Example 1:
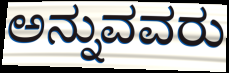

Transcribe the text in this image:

ಅನ್ನುವವರು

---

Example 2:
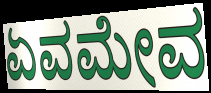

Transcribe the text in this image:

ಏವಮೇವ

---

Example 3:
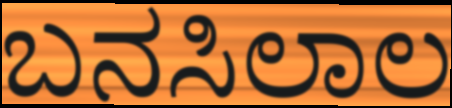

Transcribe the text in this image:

ಬನಸಿಲಾಲ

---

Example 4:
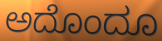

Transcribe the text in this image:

ಅದೊಂದೂ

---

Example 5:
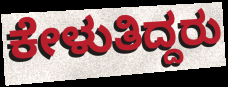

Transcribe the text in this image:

ಕೇಳುತಿದ್ದರು